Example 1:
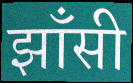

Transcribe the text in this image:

झाँसी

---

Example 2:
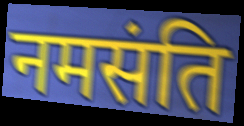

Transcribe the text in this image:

नमसंति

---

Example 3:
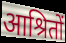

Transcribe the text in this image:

आश्रितों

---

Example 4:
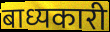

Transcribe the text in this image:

बाध्‍यकारी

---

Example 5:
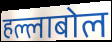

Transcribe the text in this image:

हल्लाबोल